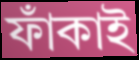
ফাঁকাই